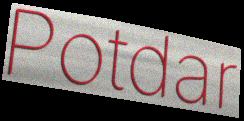
Potdar